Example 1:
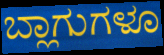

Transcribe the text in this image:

ಬ್ಲಾಗುಗಳೂ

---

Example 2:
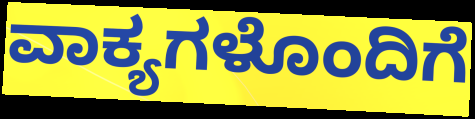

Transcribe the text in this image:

ವಾಕ್ಯಗಳೊಂದಿಗೆ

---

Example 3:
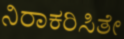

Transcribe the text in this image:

ನಿರಾಕರಿಸಿತೇ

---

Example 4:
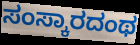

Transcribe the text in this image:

ಸಂಸ್ಕಾರದಂಥ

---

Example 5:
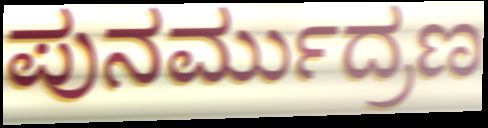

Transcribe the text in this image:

ಪುನರ್ಮುದ್ರಣ